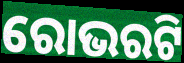
ରୋଭରଟି